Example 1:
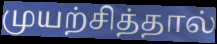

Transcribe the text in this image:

முயற்சித்தால்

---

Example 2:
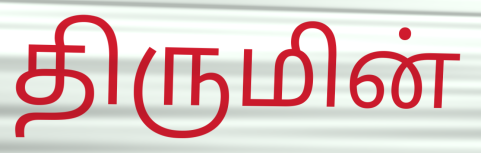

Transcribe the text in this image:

திருமின்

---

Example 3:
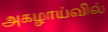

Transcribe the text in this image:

அகழாய்வில்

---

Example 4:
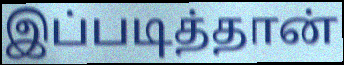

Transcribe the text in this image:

இப்படித்தான்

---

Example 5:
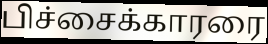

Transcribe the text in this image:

பிச்சைக்காரரை